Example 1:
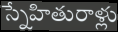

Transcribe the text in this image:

స్నేహితురాళ్లు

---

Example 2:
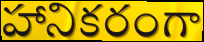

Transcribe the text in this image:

హానికరంగా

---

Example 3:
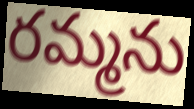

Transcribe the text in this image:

రమ్మను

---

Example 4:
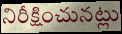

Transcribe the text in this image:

నిరీక్షించునట్లు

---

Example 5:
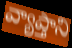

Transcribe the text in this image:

వ్యాప్తాని